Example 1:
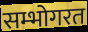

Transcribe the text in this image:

सम्भोगरत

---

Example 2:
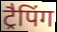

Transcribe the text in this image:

ट्रैपिंग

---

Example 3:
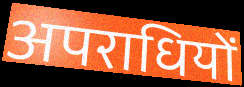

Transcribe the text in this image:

अपराधियों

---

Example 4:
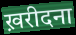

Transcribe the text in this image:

ख़रीदना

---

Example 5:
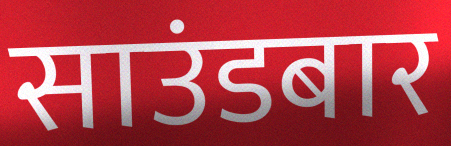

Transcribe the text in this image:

साउंडबार